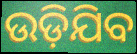
ଉଡ଼ିଯିବ